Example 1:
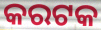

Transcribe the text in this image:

କରଟକ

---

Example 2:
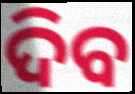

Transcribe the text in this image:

ଦିବ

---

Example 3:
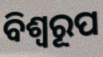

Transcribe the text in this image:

ବିଶ୍ବରୂପ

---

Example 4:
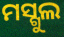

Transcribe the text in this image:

ମସ୍ଗୁଲ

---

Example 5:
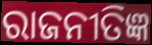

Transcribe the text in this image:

ରାଜନୀତିଜ୍ଞ